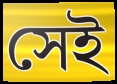
সেই